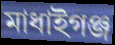
মাধাইগঞ্জ